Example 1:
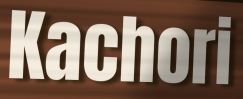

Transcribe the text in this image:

Kachori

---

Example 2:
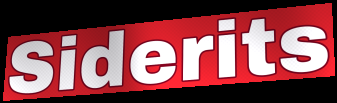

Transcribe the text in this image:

Siderits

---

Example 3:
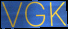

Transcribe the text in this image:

VGK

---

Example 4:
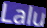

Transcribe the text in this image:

Lalu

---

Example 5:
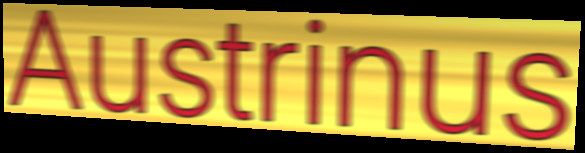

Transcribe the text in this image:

Austrinus